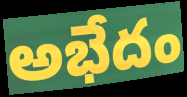
అభేదం